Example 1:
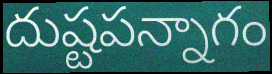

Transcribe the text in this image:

దుష్టపన్నాగం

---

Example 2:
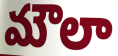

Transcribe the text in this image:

మౌలా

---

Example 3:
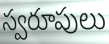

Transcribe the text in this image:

స్వరూపులు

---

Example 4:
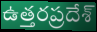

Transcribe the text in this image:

ఉత్తరప్రదేశ్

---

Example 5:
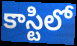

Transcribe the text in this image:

కాస్టిలో